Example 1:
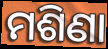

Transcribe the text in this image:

ମଶିଣା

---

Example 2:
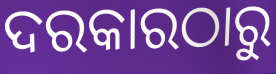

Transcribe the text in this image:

ଦରକାରଠାରୁ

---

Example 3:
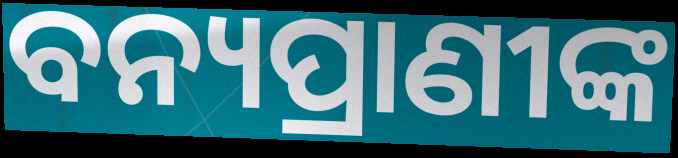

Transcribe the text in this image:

ବନ୍ୟପ୍ରାଣୀଙ୍କ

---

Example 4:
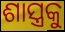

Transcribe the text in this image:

ଶାସ୍ତ୍ରକୁ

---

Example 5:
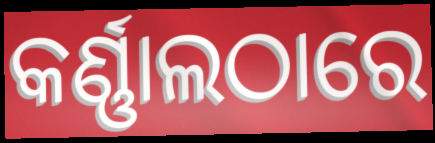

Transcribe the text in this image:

କର୍ଣ୍ଣାଲଠାରେ